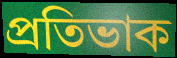
প্ৰতিভাক